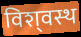
विश्वस्थ